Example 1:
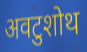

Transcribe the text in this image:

अवटुशोथ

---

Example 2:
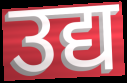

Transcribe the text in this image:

उद्य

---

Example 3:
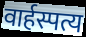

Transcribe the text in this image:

वार्हस्पत्य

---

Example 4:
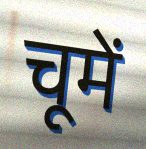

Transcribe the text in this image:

चूमें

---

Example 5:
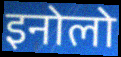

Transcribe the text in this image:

इनोलो